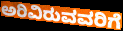
ಅರಿವಿರುವವರಿಗೆ